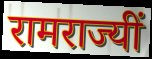
रामराज्यीं